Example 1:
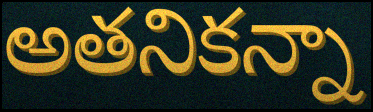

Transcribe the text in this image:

అతనికన్నా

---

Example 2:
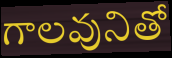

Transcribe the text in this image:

గాలవునితో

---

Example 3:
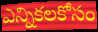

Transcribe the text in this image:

ఎన్నికలకోసం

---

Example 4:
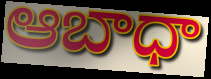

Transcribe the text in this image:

ఆబాధా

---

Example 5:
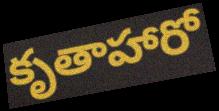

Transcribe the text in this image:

కృతాహారో